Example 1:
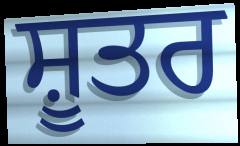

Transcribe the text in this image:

ਸ਼ੂਤਰ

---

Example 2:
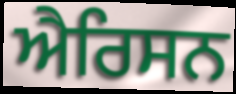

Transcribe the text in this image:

ਐਰਿਸਨ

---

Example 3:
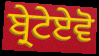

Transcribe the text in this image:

ਬ੍ਰੇਟੇਏਵੋ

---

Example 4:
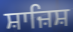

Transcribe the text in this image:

ਸ਼ਾਜ਼ਿਸ਼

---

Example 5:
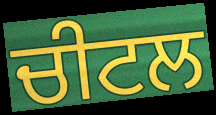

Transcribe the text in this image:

ਚੀਟਲ